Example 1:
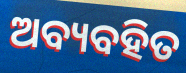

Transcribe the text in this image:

ଅବ୍ୟବହିତ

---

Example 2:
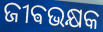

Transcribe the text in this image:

ଜୀଵଭକ୍ଷକ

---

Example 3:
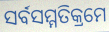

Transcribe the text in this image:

ସର୍ବସମ୍ମତିକ୍ରମେ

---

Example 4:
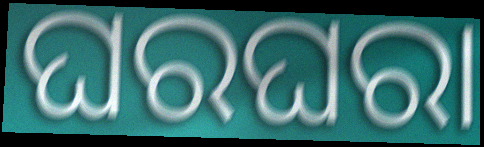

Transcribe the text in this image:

ଘରଘରା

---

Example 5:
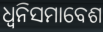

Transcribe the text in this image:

ଧ୍ୱନିସମାବେଶ